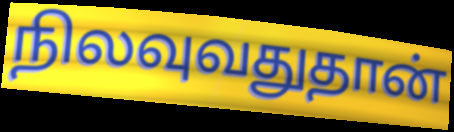
நிலவுவதுதான்